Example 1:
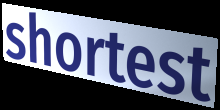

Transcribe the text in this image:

shortest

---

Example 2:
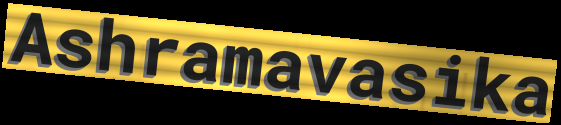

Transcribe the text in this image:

Ashramavasika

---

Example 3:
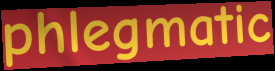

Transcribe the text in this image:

phlegmatic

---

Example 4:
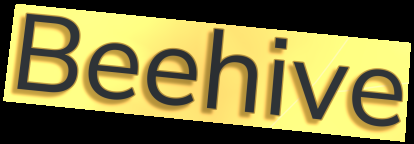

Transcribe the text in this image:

Beehive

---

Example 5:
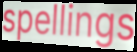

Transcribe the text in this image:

spellings